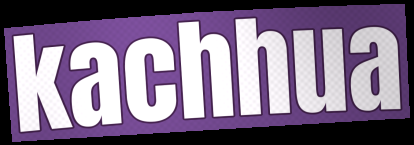
kachhua